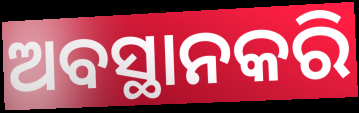
ଅବସ୍ଥାନକରି